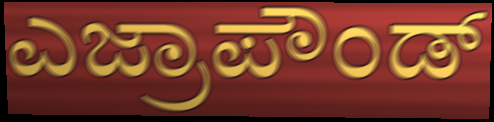
ಎಜ್ರಾಪೌಂಡ್